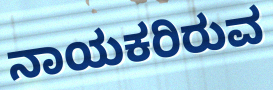
ನಾಯಕರಿರುವ